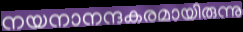
നയനാനന്ദകരമായിരുന്നു